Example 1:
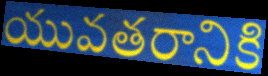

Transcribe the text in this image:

యువతరానికి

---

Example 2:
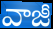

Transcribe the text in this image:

వాజీ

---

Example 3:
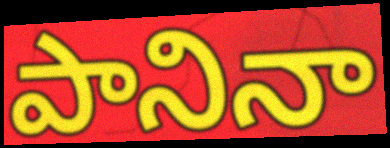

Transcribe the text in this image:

పానినా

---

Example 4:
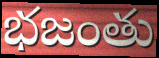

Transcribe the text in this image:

భజంతు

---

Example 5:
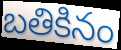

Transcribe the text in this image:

బతికినం